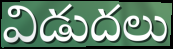
విడుదలు